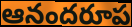
ఆనందరూప